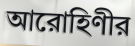
আরোহিণীর